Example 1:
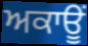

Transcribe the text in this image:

ਅਕਾਊਂ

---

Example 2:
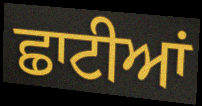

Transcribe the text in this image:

ਛਾਟੀਆਂ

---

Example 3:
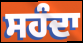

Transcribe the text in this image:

ਸਹੰਦਾ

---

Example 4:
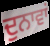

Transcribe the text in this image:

ਦੁਨਾਵਾਂ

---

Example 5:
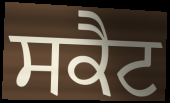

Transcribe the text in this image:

ਸਕੈਟ